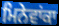
ਮਿਨੇਵਾਂਕਾ